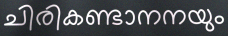
ചിരികണ്ടാനനയും